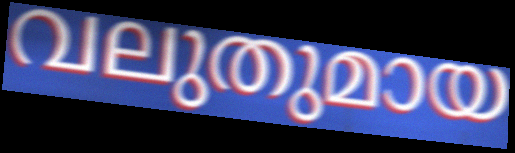
വലുതുമായ